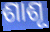
ଶାଶୂ